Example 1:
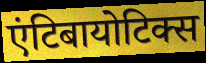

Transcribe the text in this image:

एंटिबायोटिक्स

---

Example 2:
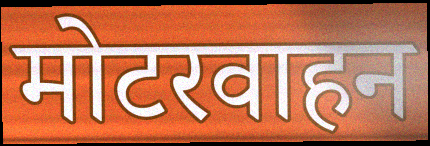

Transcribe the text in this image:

मोटरवाहन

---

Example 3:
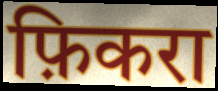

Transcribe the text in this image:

फ़िकरा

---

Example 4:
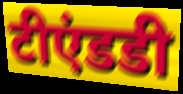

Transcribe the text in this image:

टीएंडडी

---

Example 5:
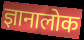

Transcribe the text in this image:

ज्ञानालोक